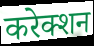
करेक्शन